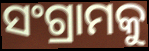
ସଂଗ୍ରାମକୁ